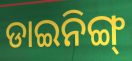
ଡାଇନିଙ୍ଗ୍